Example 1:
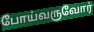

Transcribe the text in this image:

போய்வருவோர்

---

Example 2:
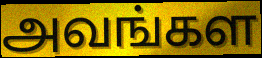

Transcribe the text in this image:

அவங்கள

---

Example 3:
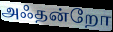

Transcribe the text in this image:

அஃதன்றோ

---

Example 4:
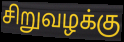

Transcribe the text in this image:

சிறுவழக்கு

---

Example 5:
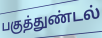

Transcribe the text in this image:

பகுத்துண்டல்